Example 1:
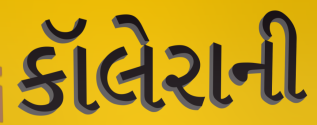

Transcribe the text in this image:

કૉલેરાની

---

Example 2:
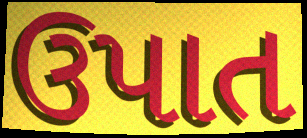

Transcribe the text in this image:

ઉપાત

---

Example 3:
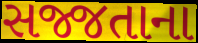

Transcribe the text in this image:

સજ્જતાના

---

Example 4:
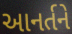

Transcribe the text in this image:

આનર્તને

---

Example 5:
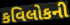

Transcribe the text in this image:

કવિલોકની